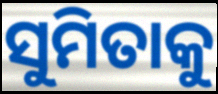
ସୁମିତାକୁ